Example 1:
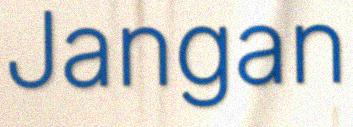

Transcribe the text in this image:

Jangan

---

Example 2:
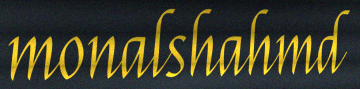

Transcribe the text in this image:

monalshahmd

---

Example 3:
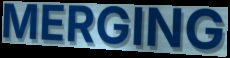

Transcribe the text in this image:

MERGING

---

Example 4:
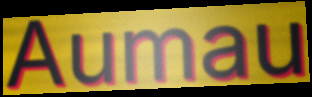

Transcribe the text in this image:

Aumau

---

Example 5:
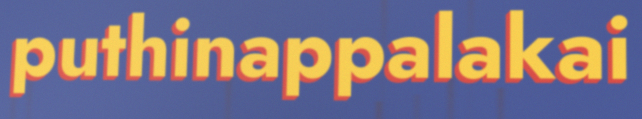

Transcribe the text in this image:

puthinappalakai